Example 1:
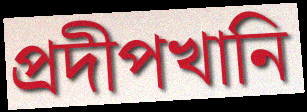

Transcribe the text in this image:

প্রদীপখানি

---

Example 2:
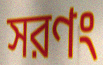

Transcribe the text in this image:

সরণং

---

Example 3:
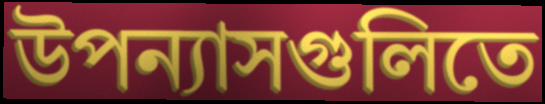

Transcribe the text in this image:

উপন্যাসগুলিতে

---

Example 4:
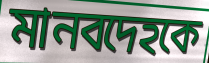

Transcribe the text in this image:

মানবদেহকে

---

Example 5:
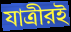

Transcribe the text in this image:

যাত্রীরই